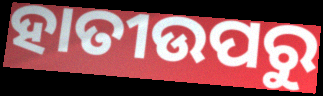
ହାତୀଉପରୁ